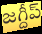
జగ్దీప్